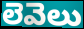
లెవెలు